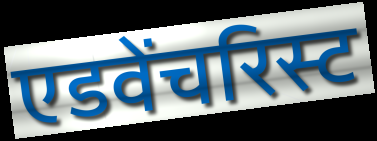
एडवेंचरिस्ट